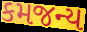
કમજન્ય